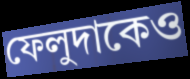
ফেলুদাকেও